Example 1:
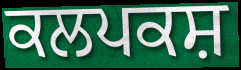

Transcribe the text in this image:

ਕਲਪਕਸ਼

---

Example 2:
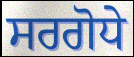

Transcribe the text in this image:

ਸਰਗੋਧੇ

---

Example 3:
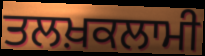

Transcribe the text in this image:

ਤਲਖ਼ਕਲਾਮੀ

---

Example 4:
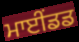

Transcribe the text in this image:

ਮਾਈਂਡਡ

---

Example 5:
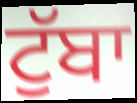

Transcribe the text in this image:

ਟੁੱਬਾ